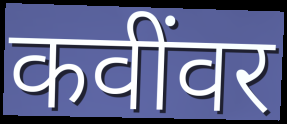
कवींवर